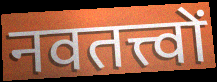
नवतत्त्वों